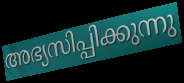
അഭ്യസിപ്പിക്കുന്നു